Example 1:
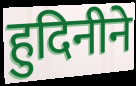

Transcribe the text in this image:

हुदिनीने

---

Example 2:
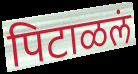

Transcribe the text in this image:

पिटाळलं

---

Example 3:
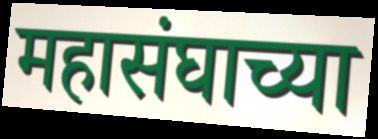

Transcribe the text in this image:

महासंघाच्या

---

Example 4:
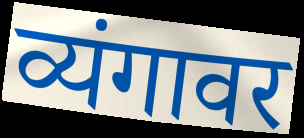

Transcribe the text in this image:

व्यंगावर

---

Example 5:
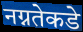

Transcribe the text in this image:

नग्नतेकडे